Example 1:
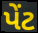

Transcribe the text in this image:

પેંટ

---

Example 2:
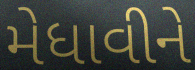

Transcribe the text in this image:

મેધાવીને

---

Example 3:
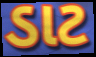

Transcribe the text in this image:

ડાટ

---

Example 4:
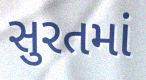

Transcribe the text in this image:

સુરતમાં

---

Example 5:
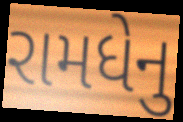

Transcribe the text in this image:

રામધેનુ